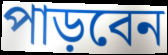
পাড়বেন